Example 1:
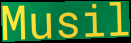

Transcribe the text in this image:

Musil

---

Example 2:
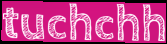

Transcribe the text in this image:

tuchchh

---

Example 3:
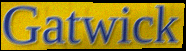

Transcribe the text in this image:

Gatwick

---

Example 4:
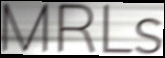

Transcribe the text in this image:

MRLs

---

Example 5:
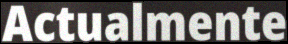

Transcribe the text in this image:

Actualmente